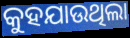
କୁହଯାଉଥିଲା